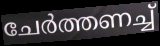
ചേർത്തണച്ച്